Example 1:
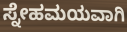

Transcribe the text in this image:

ಸ್ನೇಹಮಯವಾಗಿ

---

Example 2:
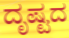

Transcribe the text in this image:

ದೃಷ್ಟದ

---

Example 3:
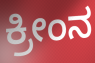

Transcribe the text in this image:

ಕ್ರೀಂನ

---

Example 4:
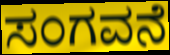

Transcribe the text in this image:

ಸಂಗವನೆ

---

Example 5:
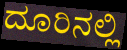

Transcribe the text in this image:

ದೂರಿನಲ್ಲಿ